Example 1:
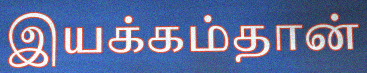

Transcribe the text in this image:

இயக்கம்தான்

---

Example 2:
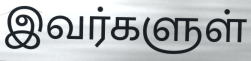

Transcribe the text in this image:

இவர்களுள்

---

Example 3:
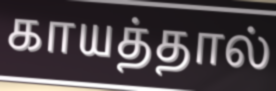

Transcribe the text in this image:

காயத்தால்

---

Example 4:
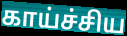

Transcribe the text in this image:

காய்ச்சிய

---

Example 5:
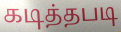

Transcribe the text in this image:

கடித்தபடி